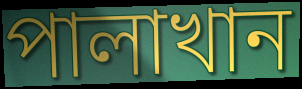
পালাখান